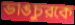
ভাঙচুরকে